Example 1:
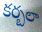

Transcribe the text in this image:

కర్బలా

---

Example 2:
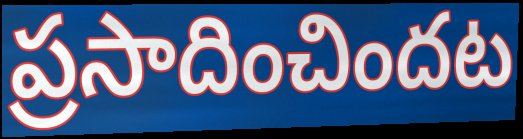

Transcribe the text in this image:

ప్రసాదించిందట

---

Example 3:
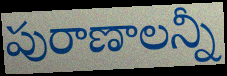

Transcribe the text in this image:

పురాణాలన్నీ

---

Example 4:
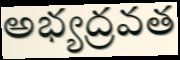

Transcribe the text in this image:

అభ్యద్రవత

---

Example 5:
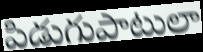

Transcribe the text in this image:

పిడుగుపాటులా